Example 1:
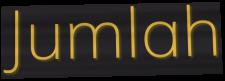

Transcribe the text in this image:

Jumlah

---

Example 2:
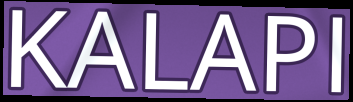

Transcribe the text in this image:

KALAPI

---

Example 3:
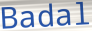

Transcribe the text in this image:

Badal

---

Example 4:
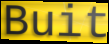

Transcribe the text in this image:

Buit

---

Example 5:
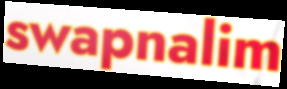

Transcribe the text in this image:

swapnalim